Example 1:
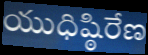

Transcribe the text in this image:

యుధిష్ఠిరేణ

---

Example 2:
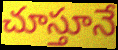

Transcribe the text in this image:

చూస్తూనే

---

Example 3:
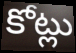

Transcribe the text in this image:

కోట్లు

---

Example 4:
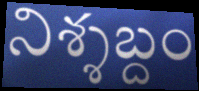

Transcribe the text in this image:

నిశ్శబ్దం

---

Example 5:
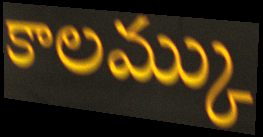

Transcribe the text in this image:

కాలమ్కు